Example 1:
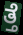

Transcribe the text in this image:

ತ್ತೆ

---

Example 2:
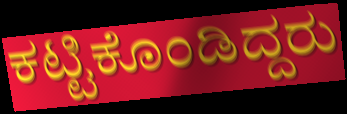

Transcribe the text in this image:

ಕಟ್ಟಿಕೊಂಡಿದ್ದರು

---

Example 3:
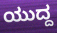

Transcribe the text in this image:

ಯುದ್ದ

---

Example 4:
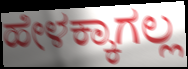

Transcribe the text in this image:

ಹೇಳಕ್ಕಾಗಲ್ಲ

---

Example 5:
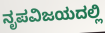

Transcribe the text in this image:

ನೃಪವಿಜಯದಲ್ಲಿ